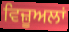
ਵਿਜ਼ੂਅਲਾਂ